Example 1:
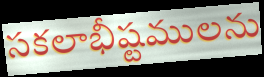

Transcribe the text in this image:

సకలాభీష్టములను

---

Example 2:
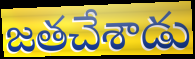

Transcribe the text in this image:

జతచేశాడు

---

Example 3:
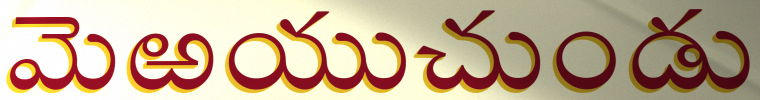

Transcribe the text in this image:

మెఱయుచుండు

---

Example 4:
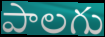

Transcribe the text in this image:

పాలగు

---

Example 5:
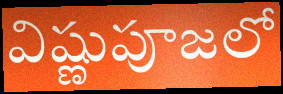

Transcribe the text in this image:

విష్ణుపూజలో